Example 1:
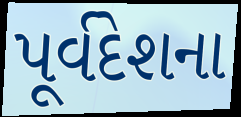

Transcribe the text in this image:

પૂર્વદેશના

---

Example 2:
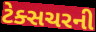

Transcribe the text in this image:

ટેક્સચરની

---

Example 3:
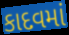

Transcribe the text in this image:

કાદવમાં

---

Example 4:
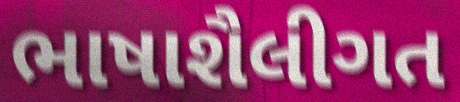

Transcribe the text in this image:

ભાષાશૈલીગત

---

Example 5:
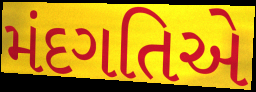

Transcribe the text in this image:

મંદગતિએ